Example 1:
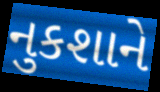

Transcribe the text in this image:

નુકશાને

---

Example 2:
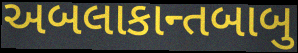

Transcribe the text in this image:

અબલાકાન્તબાબુ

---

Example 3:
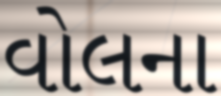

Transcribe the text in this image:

વોલના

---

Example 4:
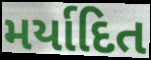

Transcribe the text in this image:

મર્યાદિત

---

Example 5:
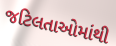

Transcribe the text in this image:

જટિલતાઓમાંથી